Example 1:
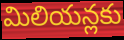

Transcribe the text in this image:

మిలియన్లకు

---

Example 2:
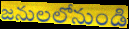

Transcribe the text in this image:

జనులలోనుండి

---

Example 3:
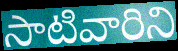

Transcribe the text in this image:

సాటివారిని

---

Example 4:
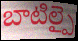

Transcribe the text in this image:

బాటిల్పై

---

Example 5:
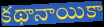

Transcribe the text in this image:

కథానాయికా